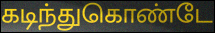
கடிந்துகொண்டே